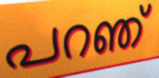
പറഞ്